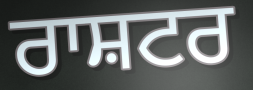
ਰਾਸ਼ਟਰ